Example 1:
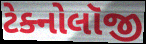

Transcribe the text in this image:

ટેક્નોલૉજી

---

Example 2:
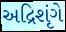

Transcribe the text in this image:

અદ્રિશૃંગે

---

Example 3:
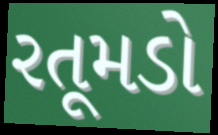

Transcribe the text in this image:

રતૂમડો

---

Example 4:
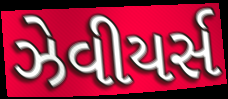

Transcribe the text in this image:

ઝેવીયર્સ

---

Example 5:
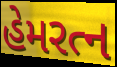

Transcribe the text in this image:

હેમરત્ન